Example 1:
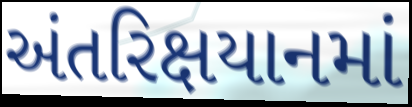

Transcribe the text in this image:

અંતરિક્ષયાનમાં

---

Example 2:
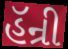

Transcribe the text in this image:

હૅન્રી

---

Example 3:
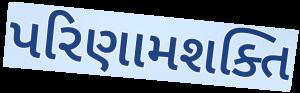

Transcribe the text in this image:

પરિણામશક્તિ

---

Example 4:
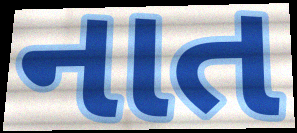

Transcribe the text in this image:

નાત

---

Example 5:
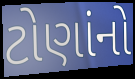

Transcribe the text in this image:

ટોણાંનો